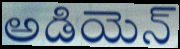
అడియెన్